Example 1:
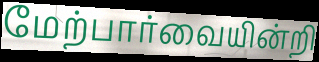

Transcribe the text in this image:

மேற்பார்வையின்றி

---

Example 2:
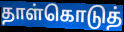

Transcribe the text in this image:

தாள்கொடுத்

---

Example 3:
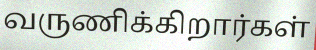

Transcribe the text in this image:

வருணிக்கிறார்கள்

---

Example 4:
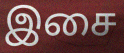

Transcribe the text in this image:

இசை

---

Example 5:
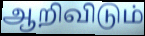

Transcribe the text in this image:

ஆறிவிடும்